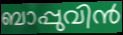
ബാപ്പുവിൻ